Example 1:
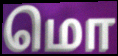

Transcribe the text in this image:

மொ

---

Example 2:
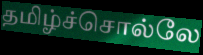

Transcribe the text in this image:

தமிழ்ச்சொல்லே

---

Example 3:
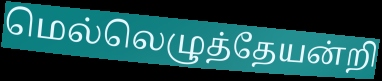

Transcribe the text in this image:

மெல்லெழுத்தேயன்றி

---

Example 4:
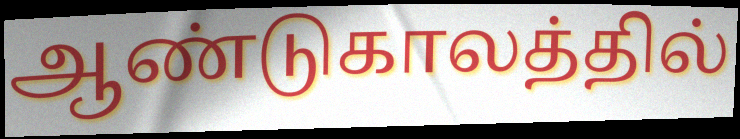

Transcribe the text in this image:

ஆண்டுகாலத்தில்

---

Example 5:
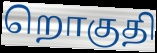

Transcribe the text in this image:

றொகுதி